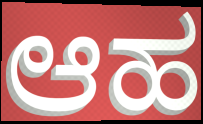
ಆಹ